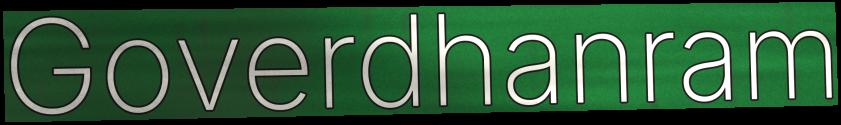
Goverdhanram